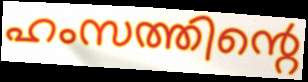
ഹംസത്തിന്റെ